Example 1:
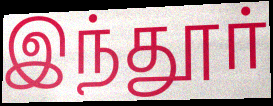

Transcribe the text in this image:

இந்தூர்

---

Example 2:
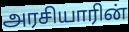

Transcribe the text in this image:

அரசியாரின்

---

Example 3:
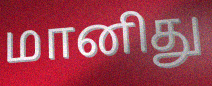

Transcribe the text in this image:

மானிது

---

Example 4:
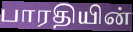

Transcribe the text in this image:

பாரதியின்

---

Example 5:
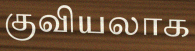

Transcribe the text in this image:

குவியலாக